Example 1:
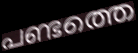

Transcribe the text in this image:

പണ്ടത്തെ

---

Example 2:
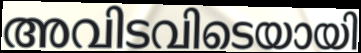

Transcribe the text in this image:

അവിടവിടെയായി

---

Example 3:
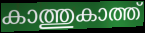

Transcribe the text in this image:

കാത്തുകാത്ത്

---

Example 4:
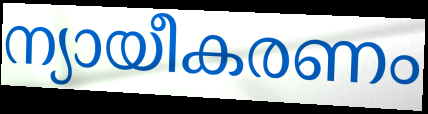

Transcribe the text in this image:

ന്യായീകരണം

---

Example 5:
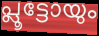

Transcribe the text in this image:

പ്ലൂട്ടോയും